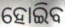
ହୋଇିବ